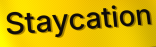
Staycation